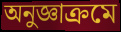
অনুজ্ঞাক্রমে